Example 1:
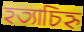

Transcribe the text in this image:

হত্যাচিহ্ন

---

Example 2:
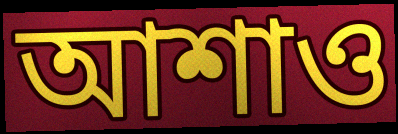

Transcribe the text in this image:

আশাও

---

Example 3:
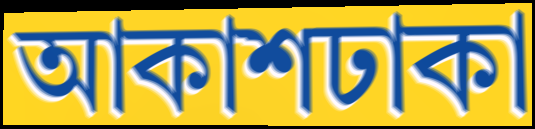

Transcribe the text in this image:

আকাশঢাকা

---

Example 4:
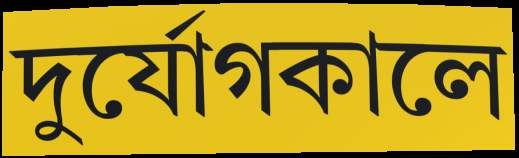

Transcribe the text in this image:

দুর্যোগকালে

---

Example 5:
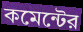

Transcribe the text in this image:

কমেন্টের